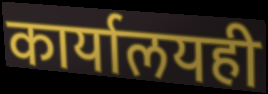
कार्यालयही